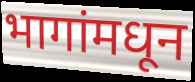
भागांमधून